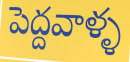
పెద్దవాళ్ళ